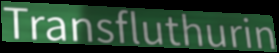
Transfluthurin